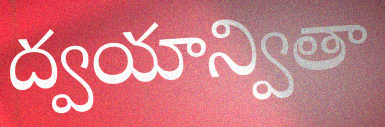
ద్వయాన్వితా